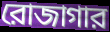
রোজাগার